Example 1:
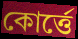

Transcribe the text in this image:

কোর্ত্তে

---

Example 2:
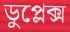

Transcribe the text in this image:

ডুপ্লেক্স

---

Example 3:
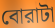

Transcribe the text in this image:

বোরাটা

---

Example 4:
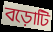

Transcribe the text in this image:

বড়োটি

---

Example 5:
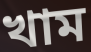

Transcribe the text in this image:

খাম